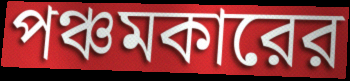
পঞ্চমকারের